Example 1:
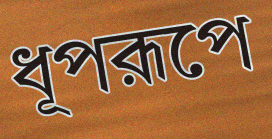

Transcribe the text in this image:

ধূপরূপে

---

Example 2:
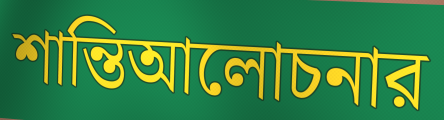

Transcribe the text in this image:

শান্তিআলোচনার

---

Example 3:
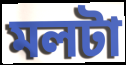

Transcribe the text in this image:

মলটা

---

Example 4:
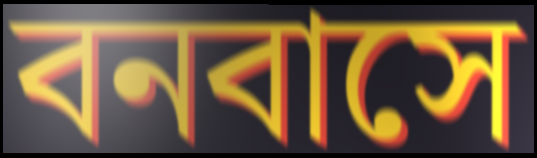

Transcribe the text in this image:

বনবাসে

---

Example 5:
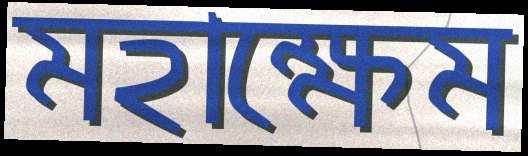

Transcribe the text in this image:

মহাক্ষেম